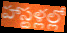
హాస్టళ్లల్లో